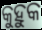
କୁହୁକ